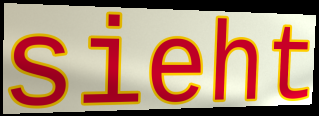
sieht